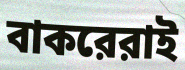
বাকরেরাই